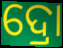
ଦ୍ରୋ